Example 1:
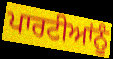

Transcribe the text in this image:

ਪਾਰਟੀਆਂਨੂੰ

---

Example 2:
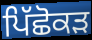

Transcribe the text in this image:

ਪਿੱਛੋਕੜ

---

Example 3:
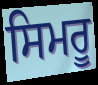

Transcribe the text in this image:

ਸਿਮਰੂ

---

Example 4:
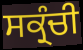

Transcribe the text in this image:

ਸਕ੍ਰੰਚੀ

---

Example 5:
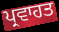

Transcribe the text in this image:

ਪ੍ਰਵਾਹਤ